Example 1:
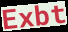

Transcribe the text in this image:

Exbt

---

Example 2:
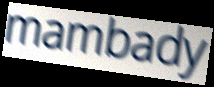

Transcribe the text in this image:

mambady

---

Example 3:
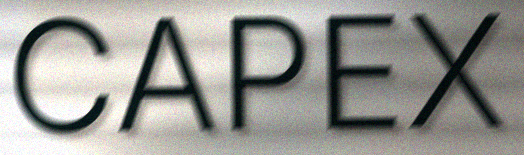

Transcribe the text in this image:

CAPEX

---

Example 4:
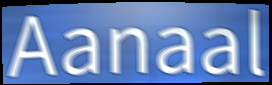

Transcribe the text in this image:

Aanaal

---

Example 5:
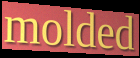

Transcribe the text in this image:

molded